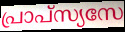
പ്രാപ്സ്യസേ